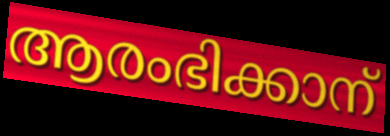
ആരംഭിക്കാന്